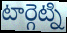
టార్గెట్ని